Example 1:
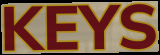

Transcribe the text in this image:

KEYS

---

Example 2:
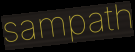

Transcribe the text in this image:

sampath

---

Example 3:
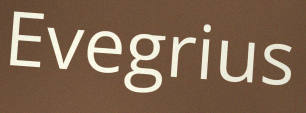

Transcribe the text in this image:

Evegrius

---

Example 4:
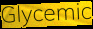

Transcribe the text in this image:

Glycemic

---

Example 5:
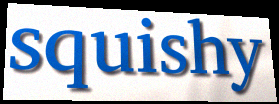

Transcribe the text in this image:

squishy